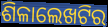
ଶିଳାଲେଖଟିର